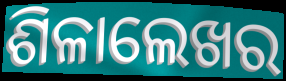
ଶିଳାଲେଖର